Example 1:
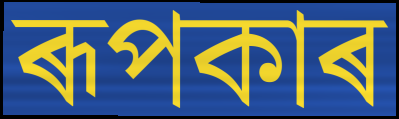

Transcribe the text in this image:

ৰূপকাৰ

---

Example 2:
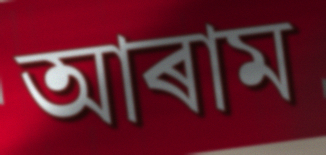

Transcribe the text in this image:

আৰাম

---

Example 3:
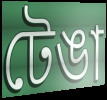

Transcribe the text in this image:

টেঙা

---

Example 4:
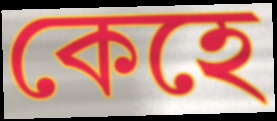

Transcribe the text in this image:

কেহে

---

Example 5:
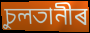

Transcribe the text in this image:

চুলতানীৰ